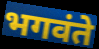
भगवंते